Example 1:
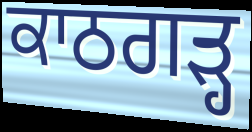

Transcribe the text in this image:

ਕਾਠਗਡ਼੍ਹ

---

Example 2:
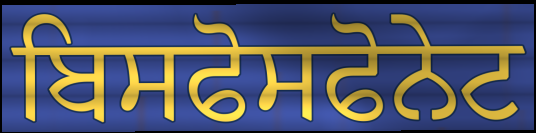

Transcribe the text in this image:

ਬਿਸਫੋਸਫੋਨੇਟ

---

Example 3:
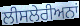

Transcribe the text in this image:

ਲੀਸਲੇਰੀਅਨਾਂ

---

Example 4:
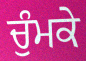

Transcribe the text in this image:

ਚੁੰਮਕੇ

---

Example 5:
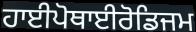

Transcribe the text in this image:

ਹਾਈਪੋਥਾਈਰੋਡਿਜਮ